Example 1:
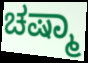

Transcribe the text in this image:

ಚಷ್ಮಾ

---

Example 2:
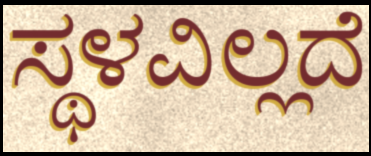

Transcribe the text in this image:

ಸ್ಥಳವಿಲ್ಲದೆ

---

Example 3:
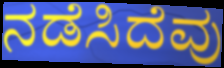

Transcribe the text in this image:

ನಡೆಸಿದೆವು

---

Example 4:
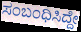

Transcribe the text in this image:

ಸಂಬಂಧಿಸಿದ್ದೇ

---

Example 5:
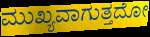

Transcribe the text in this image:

ಮುಖ್ಯವಾಗುತ್ತದೋ